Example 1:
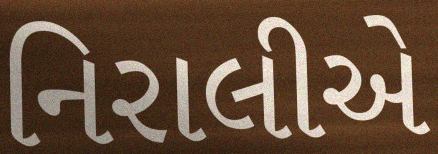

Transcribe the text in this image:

નિરાલીએ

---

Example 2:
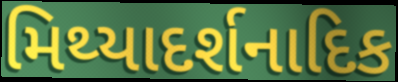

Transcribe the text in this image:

મિથ્યાદર્શનાદિક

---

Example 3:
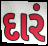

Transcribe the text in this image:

દારં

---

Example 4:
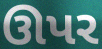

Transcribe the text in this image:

ઊપર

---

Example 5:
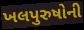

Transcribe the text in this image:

ખલપુરુષોની